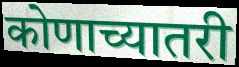
कोणाच्यातरी